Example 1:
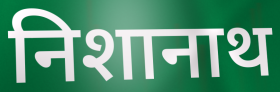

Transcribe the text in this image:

निशानाथ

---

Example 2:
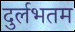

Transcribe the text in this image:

दुर्लभतम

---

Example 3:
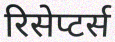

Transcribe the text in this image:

रिसेप्टर्स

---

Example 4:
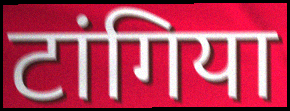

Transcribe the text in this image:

टांगिया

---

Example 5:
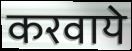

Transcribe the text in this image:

करवाये